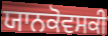
ਯਾਨਕੋਵਸਕੀ